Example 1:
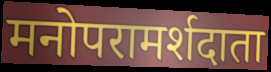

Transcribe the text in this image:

मनोपरामर्शदाता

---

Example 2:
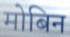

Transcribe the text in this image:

मोबिन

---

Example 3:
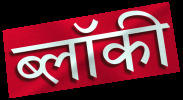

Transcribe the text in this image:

ब्लॉकी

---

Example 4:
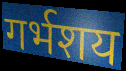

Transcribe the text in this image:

गर्भशय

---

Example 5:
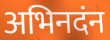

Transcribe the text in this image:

अभिनदंन